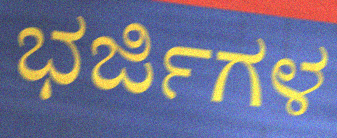
ಭರ್ಜಿಗಳ